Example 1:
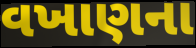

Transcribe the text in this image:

વખાણના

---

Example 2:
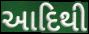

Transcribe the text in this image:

આદિથી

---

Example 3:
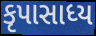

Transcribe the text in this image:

કૃપાસાધ્ય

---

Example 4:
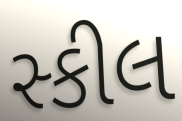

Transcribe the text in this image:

સ્કીલ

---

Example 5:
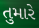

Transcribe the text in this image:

તુમારે